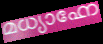
മധ്യാഹ്നേ